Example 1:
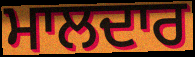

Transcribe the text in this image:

ਮਾਲਦਾਰ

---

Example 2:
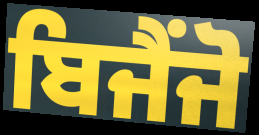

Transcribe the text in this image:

ਬਿਜੈਂਜੋ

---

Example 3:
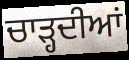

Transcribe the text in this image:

ਚਾੜ੍ਹਦੀਆਂ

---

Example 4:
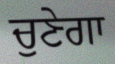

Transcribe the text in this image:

ਚੁਣੇਗਾ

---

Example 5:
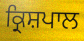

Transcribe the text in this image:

ਕ੍ਰਿਸ਼ਪਾਲ